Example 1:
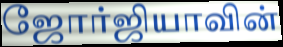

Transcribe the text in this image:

ஜோர்ஜியாவின்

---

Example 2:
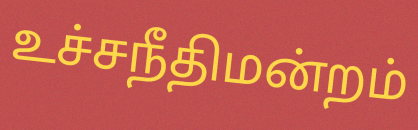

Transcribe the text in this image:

உச்சநீதிமன்றம்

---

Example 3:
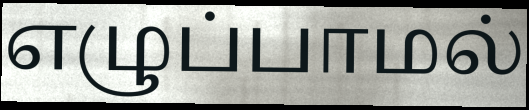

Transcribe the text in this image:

எழுப்பாமல்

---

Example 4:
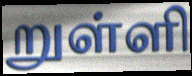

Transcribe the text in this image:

றுள்ளி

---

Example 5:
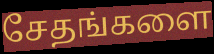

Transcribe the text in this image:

சேதங்களை